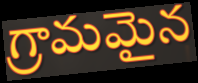
గ్రామమైన